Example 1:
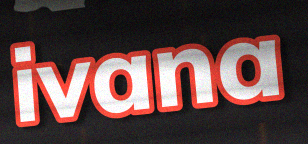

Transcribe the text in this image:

ivana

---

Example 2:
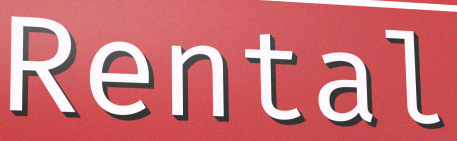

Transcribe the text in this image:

Rental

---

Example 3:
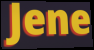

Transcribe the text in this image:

Jene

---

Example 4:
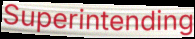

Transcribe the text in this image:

Superintending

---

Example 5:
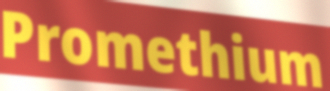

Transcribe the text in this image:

Promethium